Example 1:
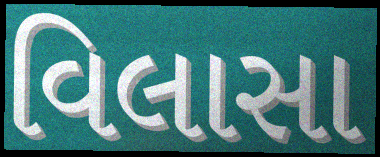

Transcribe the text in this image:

વિલાસા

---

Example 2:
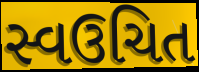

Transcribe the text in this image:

સ્વઉચિત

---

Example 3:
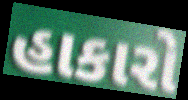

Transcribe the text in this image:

હાકારો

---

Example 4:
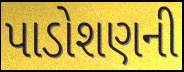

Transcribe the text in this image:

પાડોશણની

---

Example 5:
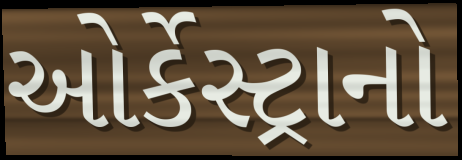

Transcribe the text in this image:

ઓર્કેસ્ટ્રાનો